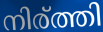
നിര്ത്തി